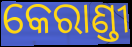
କେରାଣ୍ଡୀ